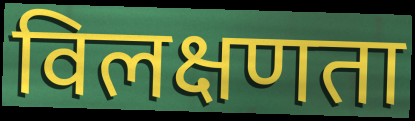
विलक्षणता